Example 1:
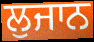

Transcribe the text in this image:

ਲੁਜਾਨ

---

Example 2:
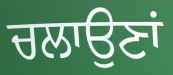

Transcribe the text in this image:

ਚਲਾਉਣਾਂ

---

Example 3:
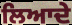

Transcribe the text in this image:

ਲਿਆਦੇ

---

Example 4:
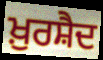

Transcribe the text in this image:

ਖ਼ੁਰਸ਼ੈਦ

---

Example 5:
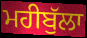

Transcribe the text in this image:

ਮਹੀਬੁੱਲਾ